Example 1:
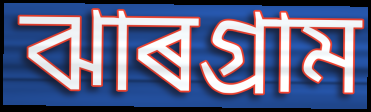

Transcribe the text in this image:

ঝাৰগ্ৰাম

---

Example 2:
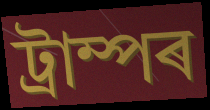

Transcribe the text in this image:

ট্ৰাম্পৰ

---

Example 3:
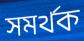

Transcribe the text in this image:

সমৰ্থক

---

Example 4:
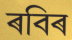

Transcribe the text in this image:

ৰবিৰ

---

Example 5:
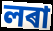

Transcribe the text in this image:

লৰা